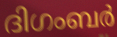
ദിഗംബർ